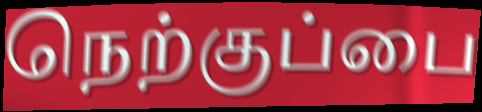
நெற்குப்பை